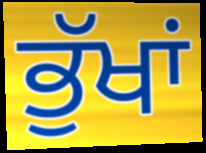
ਭੁੱਖਾਂ